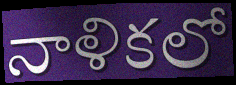
నాళికలో